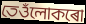
তেওঁলোকৰো